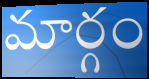
మార్గం